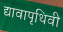
द्यावापृथिवी